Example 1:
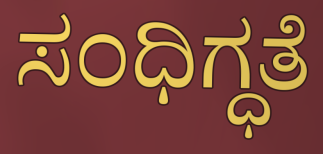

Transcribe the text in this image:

ಸಂಧಿಗ್ಧತೆ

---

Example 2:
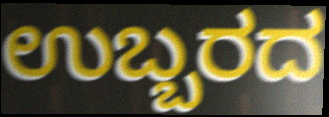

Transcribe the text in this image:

ಉಬ್ಬರದ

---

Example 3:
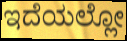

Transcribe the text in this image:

ಇದೆಯಲ್ಲೋ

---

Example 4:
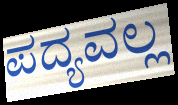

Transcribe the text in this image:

ಪದ್ಯವಲ್ಲ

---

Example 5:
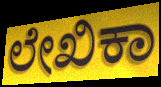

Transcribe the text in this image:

ಲೇಖಿಕಾ